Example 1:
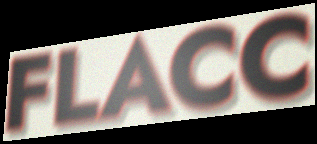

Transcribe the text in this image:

FLACC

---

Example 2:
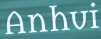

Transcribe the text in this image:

Anhui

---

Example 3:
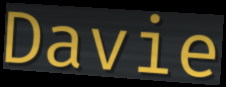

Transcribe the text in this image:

Davie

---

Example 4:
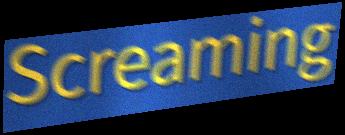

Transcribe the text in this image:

Screaming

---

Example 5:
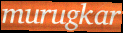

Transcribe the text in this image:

murugkar